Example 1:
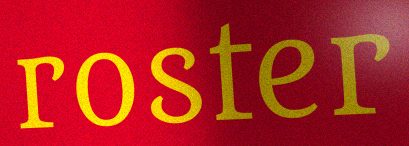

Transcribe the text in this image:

roster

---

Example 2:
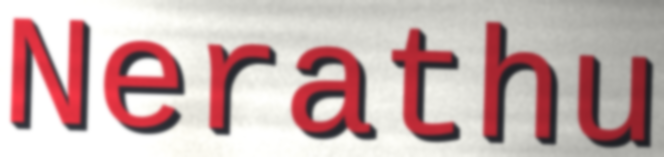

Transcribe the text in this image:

Nerathu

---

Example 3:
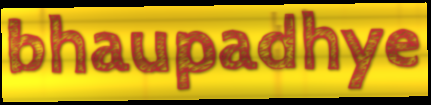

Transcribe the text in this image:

bhaupadhye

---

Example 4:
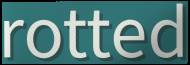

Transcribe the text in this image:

rotted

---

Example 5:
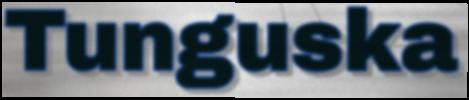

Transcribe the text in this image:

Tunguska